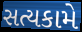
સત્યકામે